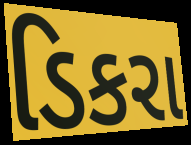
ડિકરા